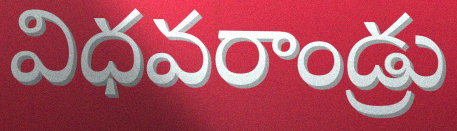
విధవరాండ్రు